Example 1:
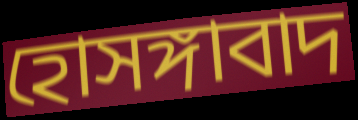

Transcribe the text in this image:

হোসঙ্গাবাদ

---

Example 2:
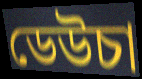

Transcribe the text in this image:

ডেউচা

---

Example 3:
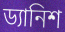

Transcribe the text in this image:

ড্যানিশ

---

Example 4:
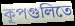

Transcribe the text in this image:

কূপগুলিতে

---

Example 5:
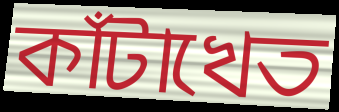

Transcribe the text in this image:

কাঁটাখেত